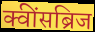
क्वींसब्रिज